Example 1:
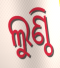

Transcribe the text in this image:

ଲୁଣ୍ଠି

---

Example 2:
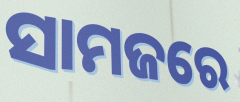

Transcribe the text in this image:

ସାମଜରେ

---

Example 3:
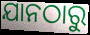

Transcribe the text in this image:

ଯାନଠାରୁ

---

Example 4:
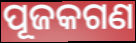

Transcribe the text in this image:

ପୂଜକଗଣ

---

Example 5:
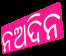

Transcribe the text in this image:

ନଅଦିନ